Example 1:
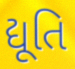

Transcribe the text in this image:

દ્યૂતિ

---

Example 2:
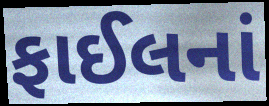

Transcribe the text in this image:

ફાઈલનાં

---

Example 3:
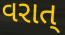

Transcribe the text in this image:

વરાત્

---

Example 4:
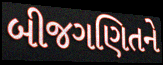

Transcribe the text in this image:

બીજગણિતને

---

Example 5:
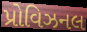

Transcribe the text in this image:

પ્રોવિઝનલ